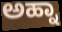
ಅಹ್ನಾ